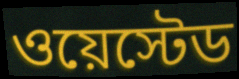
ওয়েস্টেড